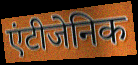
एंटीजेनिक